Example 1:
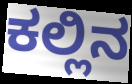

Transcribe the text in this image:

ಕಲ್ಲಿನ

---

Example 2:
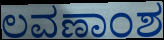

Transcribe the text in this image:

ಲವಣಾಂಶ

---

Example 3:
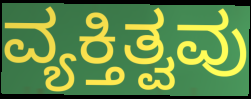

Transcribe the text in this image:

ವ್ಯಕ್ತಿತ್ವವು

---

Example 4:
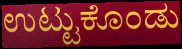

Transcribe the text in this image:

ಉಟ್ಟುಕೊಂಡು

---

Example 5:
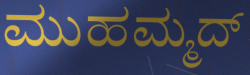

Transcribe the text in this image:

ಮುಹಮ್ಮದ್